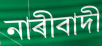
নাৰীবাদী